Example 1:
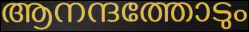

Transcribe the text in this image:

ആനന്ദത്തോടും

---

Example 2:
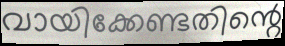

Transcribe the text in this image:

വായിക്കേണ്ടതിന്റെ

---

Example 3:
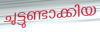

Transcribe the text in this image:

ചുട്ടുണ്ടാക്കിയ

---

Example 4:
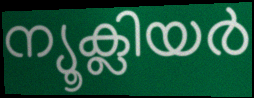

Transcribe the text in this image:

ന്യൂക്ലിയർ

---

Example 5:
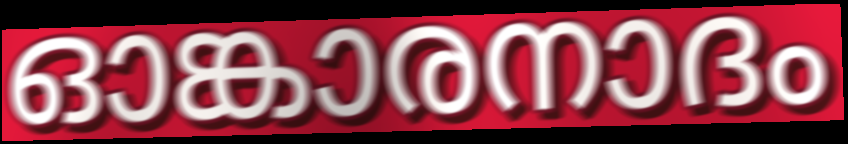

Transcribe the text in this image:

ഓങ്കാരനാദം